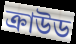
ক্রাউড